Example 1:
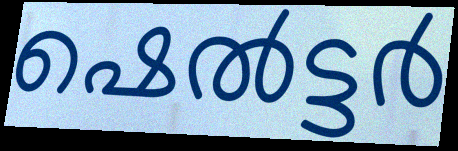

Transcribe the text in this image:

ഷെൽട്ടർ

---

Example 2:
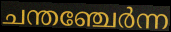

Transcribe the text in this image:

ചന്തഞ്ചേർന്ന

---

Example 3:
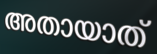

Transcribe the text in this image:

അതായാത്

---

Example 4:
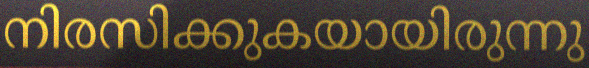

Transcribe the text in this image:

നിരസിക്കുകയായിരുന്നു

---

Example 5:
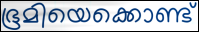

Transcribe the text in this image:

ഭൂമിയെക്കൊണ്ട്